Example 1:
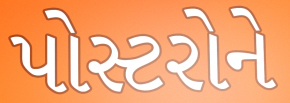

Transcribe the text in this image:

પોસ્ટરોને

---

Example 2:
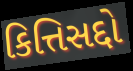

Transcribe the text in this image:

કિત્તિસદ્દો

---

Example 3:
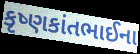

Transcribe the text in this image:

કૃષ્ણકાંતભાઈના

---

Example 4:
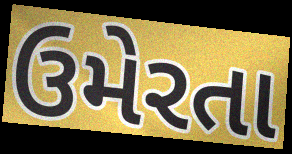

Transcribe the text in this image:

ઉમેરતા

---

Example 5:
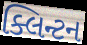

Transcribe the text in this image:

ક્લિન્ટન